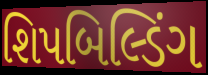
શિપબિલ્ડિંગ